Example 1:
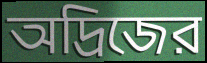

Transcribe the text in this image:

অদ্রিজের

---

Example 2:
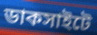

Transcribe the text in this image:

ডাকসাইটে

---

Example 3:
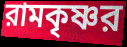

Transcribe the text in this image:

রামকৃষ্ণর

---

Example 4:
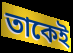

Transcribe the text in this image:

তাকেই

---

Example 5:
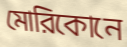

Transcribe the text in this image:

মোরিকোনে